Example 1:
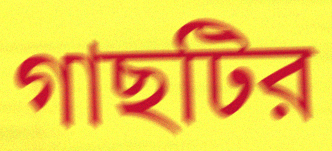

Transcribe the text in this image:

গাছটির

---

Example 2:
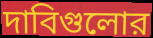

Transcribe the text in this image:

দাবিগুলোর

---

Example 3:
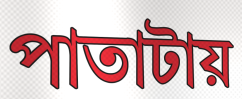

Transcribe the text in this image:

পাতাটায়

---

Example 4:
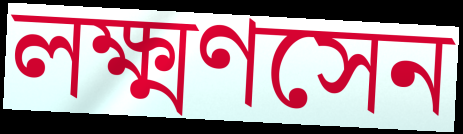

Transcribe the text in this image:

লক্ষ্মণসেন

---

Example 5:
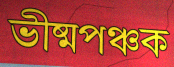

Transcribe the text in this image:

ভীষ্মপঞ্চক